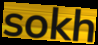
sokh